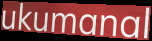
ukumanal